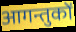
आगन्तुकों